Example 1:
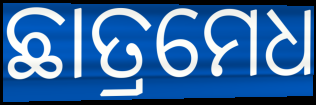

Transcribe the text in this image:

ଛାତ୍ରମେଧ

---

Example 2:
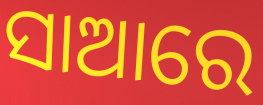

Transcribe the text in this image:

ସାଆରେ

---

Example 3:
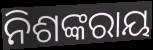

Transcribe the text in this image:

ନିଶଙ୍କରାୟ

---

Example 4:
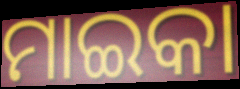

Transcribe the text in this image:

ମାଇକା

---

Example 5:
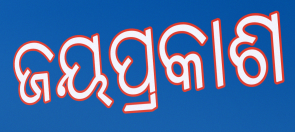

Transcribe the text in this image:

ଜୟପ୍ରକାଶ